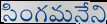
సింగమనేని